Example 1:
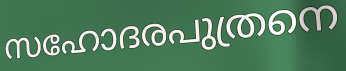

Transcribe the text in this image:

സഹോദരപുത്രനെ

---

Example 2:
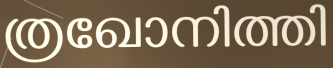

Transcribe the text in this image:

ത്രഖോനിത്തി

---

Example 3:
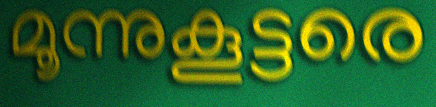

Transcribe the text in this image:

മൂന്നുകൂട്ടരെ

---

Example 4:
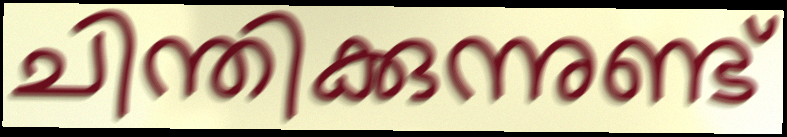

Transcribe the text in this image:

ചിന്തിക്കുന്നുണ്ട്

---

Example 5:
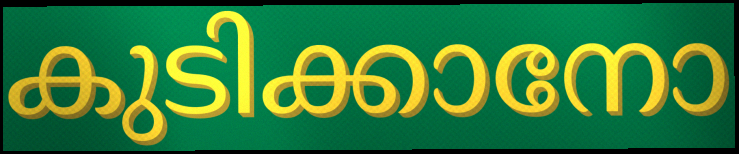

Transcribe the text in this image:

കുടിക്കാനോ